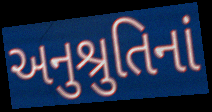
અનુશ્રુતિનાં